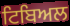
ਟਿਬਿਅਲ